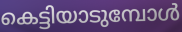
കെട്ടിയാടുമ്പോൾ